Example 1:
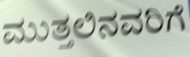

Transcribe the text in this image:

ಮುತ್ತಲಿನವರಿಗೆ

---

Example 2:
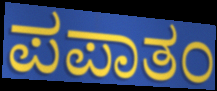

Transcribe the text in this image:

ಪಪಾತಂ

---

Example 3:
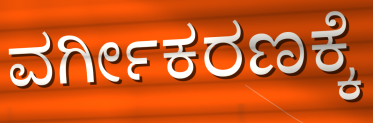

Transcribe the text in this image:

ವರ್ಗೀಕರಣಕ್ಕೆ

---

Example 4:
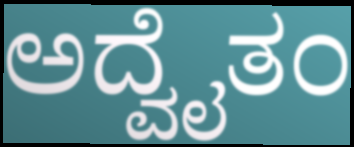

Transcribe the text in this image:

ಅದ್ವೈತಂ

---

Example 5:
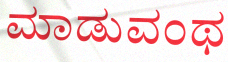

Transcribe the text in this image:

ಮಾಡುವಂಥ